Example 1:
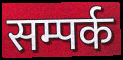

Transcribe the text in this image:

सम्‍पर्क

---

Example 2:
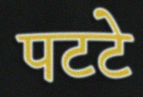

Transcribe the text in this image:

पटटे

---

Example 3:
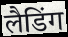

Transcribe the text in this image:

लैडिंग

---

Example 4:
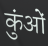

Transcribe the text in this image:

कुंओं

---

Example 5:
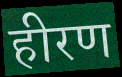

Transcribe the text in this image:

हीरण